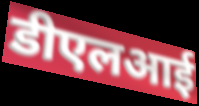
डीएलआई